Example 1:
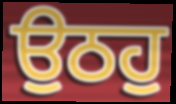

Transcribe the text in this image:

ਉਠਹੁ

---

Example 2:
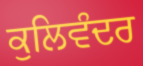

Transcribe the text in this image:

ਕੁਲਿਵੰਦਰ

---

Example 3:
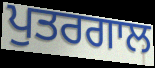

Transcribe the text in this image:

ਪੁਤਰਗਾਲ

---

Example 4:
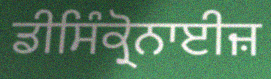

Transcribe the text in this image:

ਡੀਸਿੰਕ੍ਰੋਨਾਈਜ਼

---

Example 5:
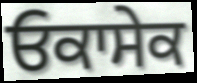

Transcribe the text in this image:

ਓਕਾਸੇਕ